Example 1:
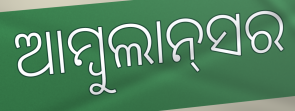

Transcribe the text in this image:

ଆମ୍ବୁଲାନ୍‌ସର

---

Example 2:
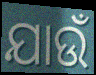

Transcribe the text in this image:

ଯାଉଁ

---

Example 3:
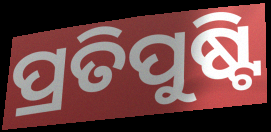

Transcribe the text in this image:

ପ୍ରତିପୁଷ୍ଟି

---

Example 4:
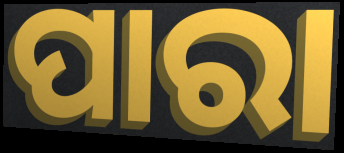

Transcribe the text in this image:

ପାରା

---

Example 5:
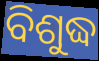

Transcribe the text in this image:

ବିଶୁଦ୍ଧ